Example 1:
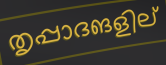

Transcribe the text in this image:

തൃപ്പാദങളില്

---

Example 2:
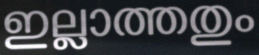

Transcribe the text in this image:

ഇല്ലാത്തതും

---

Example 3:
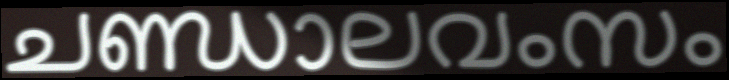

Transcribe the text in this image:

ചണ്ഡാലവംസം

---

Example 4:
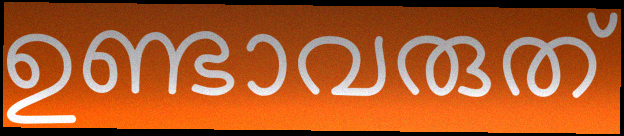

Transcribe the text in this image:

ഉണ്ടാവരുത്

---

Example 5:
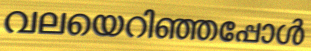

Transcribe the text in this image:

വലയെറിഞ്ഞപ്പോൾ